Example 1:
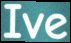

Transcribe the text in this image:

Ive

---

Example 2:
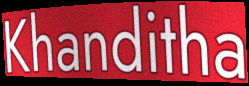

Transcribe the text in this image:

Khanditha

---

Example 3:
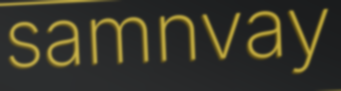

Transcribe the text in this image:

samnvay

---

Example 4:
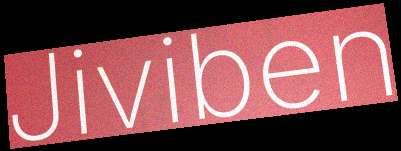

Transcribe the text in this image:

Jiviben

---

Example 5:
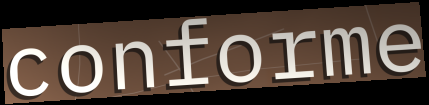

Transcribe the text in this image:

conforme